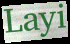
Layi